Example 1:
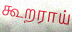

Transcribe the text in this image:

கூறராய்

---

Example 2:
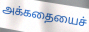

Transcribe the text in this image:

அக்கதையைச்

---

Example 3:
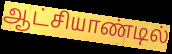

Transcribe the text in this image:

ஆட்சியாண்டில்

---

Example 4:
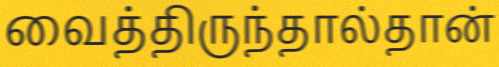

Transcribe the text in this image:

வைத்திருந்தால்தான்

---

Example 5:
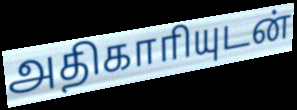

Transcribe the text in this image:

அதிகாரியுடன்